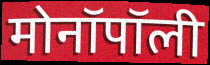
मोनॉपॉली